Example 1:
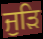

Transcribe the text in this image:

ਜੁੜਿ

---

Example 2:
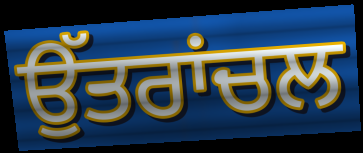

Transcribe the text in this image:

ਉੱਤਰਾਂਚਲ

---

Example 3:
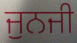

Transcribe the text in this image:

ਜੁਨਜੀ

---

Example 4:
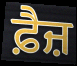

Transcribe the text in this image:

ਫ਼ੈਜ਼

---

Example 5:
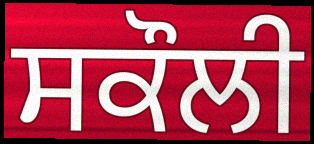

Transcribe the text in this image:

ਸਕੌਲੀ